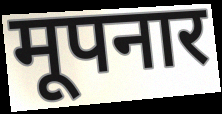
मूपनार